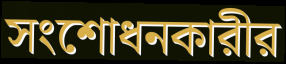
সংশোধনকারীর